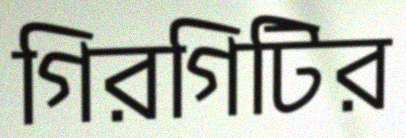
গিরগিটির